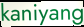
kaniyang